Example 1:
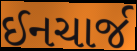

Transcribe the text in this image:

ઈનચાર્જ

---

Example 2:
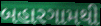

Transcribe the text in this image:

બહારગામથી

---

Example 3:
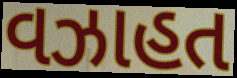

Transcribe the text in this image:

વઝાહત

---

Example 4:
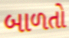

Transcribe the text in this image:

બાળતો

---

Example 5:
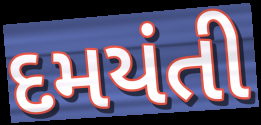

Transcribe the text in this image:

દમયંતી